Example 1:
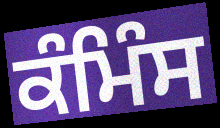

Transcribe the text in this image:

ਕੰਮਿੰਸ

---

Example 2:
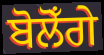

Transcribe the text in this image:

ਬੋਲੋਁਗੇ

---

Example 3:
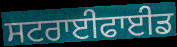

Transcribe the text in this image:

ਸਟਰਾਈਫਾਈਡ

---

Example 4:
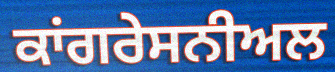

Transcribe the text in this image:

ਕਾਂਗਰੇਸਨੀਅਲ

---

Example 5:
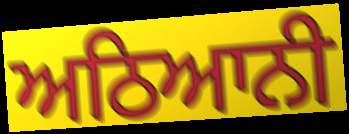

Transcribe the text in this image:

ਅਠਿਆਨੀ